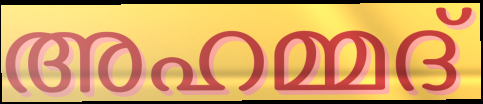
അഹമ്മദ്